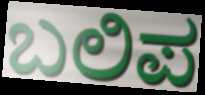
ಬಲಿಪ